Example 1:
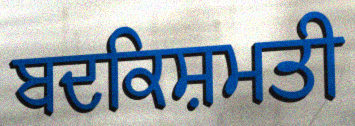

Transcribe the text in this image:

ਬਦਕਿਸ਼ਮਤੀ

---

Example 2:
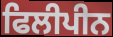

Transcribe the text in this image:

ਫਿਲੀਪੀਨ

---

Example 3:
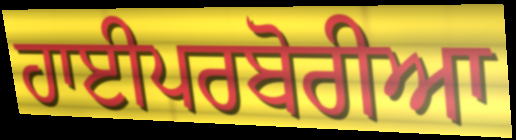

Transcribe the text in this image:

ਹਾਈਪਰਬੋਰੀਆ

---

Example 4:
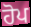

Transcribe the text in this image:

ਹੋਪ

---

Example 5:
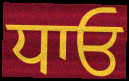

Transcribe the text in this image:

ਧਾਓ